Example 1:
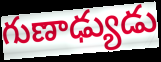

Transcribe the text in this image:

గుణాఢ్యుడు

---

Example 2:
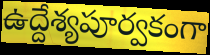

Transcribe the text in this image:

ఉద్దేశ్యపూర్వకంగా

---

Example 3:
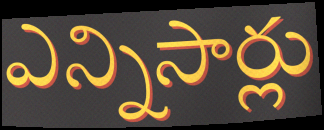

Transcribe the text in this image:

ఎన్నిసార్లు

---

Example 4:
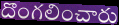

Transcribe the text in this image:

దొంగలించారు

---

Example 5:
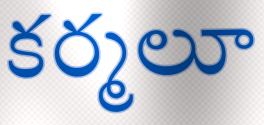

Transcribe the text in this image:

కర్మలూ